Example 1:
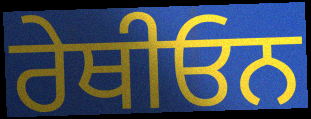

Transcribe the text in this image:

ਰੇਥੀਓਨ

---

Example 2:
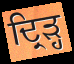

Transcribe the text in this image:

ਦ੍ਰਿੜ੍ਹ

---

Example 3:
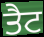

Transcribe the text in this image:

ਤੈਟ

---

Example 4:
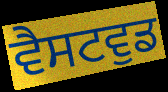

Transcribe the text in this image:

ਵੈਸਟਵੁਡ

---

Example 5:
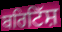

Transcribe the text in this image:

ਬਰਿਟਿੱਸ਼